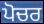
ਪੋਚਰ